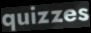
quizzes